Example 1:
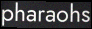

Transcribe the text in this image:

pharaohs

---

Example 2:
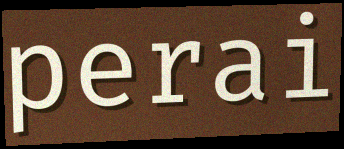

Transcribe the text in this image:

perai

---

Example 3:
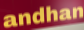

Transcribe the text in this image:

andhan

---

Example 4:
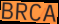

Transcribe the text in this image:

BRCA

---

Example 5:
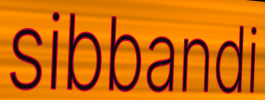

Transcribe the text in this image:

sibbandi